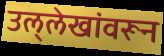
उल्लेखांवरून